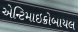
એન્ટિમાઇક્રોબાયલ